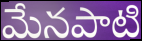
మేనపాటి